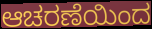
ಆಚರಣೆಯಿಂದ